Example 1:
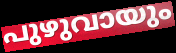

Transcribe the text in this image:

പുഴുവായും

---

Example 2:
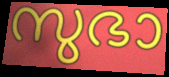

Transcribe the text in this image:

സുഭാ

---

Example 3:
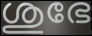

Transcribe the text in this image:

ശുഭേ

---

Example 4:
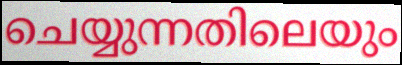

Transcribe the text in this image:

ചെയ്യുന്നതിലെയും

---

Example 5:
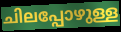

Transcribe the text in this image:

ചിലപ്പോഴുള്ള